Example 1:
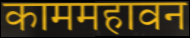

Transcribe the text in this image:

काममहावन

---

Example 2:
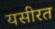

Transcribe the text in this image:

यसीरत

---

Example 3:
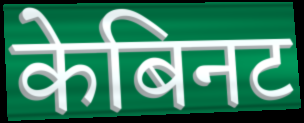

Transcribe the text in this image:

केबिनट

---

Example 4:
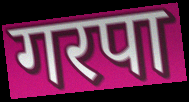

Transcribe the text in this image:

गरपा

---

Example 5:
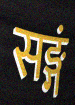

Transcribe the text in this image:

सङ्गं